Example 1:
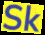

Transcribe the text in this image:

Sk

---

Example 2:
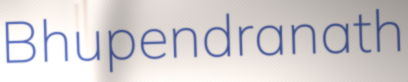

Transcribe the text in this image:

Bhupendranath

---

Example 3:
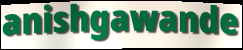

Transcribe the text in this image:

anishgawande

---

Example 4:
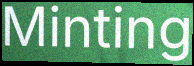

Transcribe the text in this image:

Minting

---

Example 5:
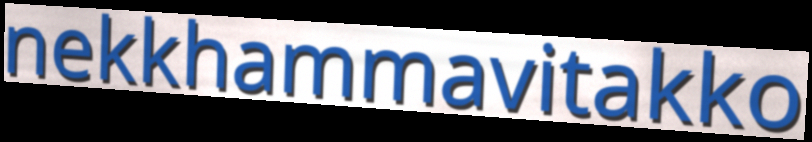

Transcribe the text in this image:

nekkhammavitakko